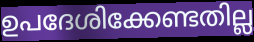
ഉപദേശിക്കേണ്ടതില്ല